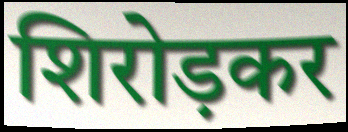
शिरोड़कर